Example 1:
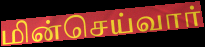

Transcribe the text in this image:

மின்செய்வார்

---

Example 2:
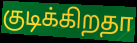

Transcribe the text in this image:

குடிக்கிறதா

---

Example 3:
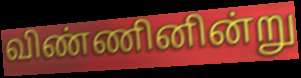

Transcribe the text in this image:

விண்ணினின்று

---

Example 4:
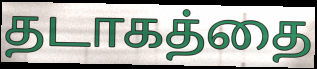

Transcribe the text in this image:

தடாகத்தை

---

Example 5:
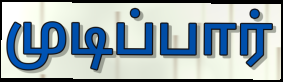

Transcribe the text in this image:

முடிப்பார்